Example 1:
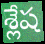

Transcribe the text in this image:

శ్లేష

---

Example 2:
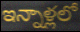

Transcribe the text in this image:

ఇన్నాళ్లలో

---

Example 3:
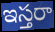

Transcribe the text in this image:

ఇస్తరా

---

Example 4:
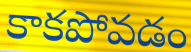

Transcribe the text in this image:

కాకపోవడం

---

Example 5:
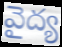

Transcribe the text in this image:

వైద్య